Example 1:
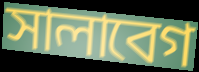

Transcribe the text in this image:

সালাবেগ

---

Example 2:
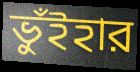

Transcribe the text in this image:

ভুঁইহার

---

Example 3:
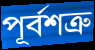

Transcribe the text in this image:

পূর্বশত্রু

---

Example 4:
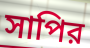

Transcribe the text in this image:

সাপির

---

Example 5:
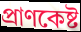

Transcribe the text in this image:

প্রাণকেষ্ট